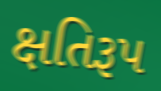
ક્ષતિરૂપ